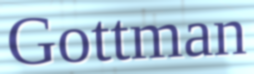
Gottman